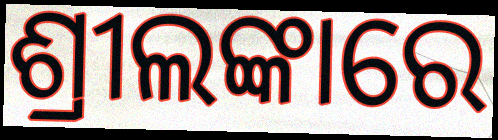
ଶ୍ରୀଲଙ୍କାରେ